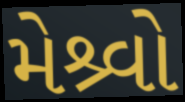
મેશ્ર્વો